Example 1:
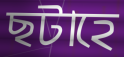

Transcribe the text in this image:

ছটাহে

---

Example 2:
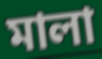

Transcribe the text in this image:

মালা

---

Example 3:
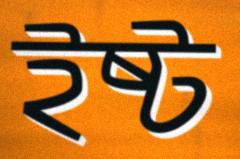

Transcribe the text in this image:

ইষ্ট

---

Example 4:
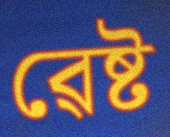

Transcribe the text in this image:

ৱেষ্ট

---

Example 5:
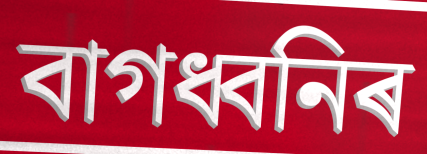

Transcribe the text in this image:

বাগধ্বনিৰ